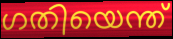
ഗതിയെന്ത്